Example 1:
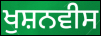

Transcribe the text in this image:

ਖੁਸ਼ਨਵੀਸ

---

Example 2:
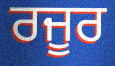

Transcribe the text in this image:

ਰਜੂਰ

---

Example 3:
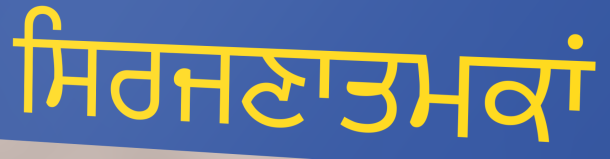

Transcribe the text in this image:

ਸਿਰਜਣਾਤਮਕਾਂ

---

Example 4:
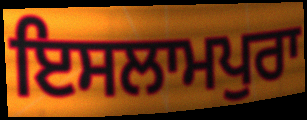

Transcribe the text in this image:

ਇਸਲਾਮਪੁਰਾ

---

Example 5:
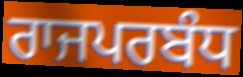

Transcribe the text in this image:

ਰਾਜਪਰਬੰਧ